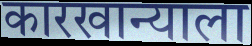
कारखान्याला